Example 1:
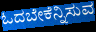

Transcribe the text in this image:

ಓದಬೇಕೆನ್ನಿಸುವ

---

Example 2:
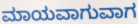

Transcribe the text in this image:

ಮಾಯವಾಗುವಾಗ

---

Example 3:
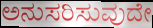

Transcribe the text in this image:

ಅನುಸರಿಸುವುದೇ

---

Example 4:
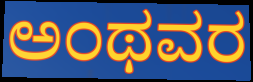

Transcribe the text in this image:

ಅಂಥವರ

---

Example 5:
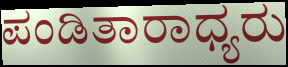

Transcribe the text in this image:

ಪಂಡಿತಾರಾಧ್ಯರು